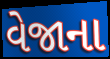
વેજાના